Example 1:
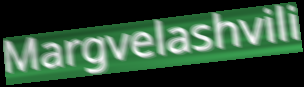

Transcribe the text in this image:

Margvelashvili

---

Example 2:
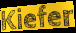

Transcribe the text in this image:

Kiefer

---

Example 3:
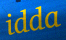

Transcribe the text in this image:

idda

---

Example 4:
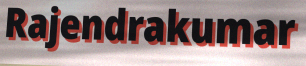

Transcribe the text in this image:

Rajendrakumar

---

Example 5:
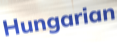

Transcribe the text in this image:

Hungarian